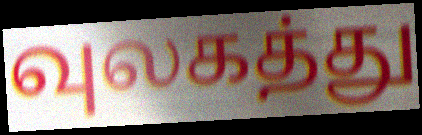
வுலகத்து